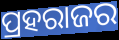
ପ୍ରହରାଜର